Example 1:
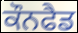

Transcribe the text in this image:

ਕੌਨਫੈਡ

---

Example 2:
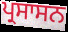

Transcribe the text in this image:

ਪ੍ਰਸਾਸਨ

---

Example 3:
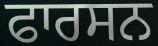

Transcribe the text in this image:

ਫਾਰਸਨ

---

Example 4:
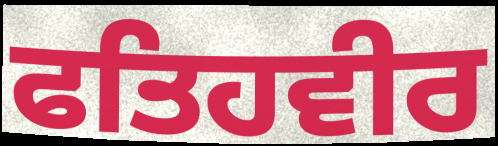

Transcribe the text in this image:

ਫਤਿਹਵੀਰ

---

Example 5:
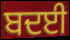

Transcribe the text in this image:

ਬਦਈ